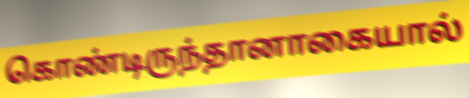
கொண்டிருந்தானாகையால்